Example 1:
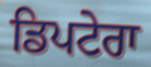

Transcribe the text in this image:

ਡਿਪਟੇਰਾ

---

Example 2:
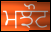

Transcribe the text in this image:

ਮਝੌਟ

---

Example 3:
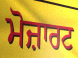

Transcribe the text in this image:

ਮੋਜ਼ਾਰਟ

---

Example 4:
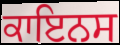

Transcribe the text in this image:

ਕਾਇਨਸ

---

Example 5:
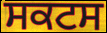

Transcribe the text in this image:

ਸਕਟਸ